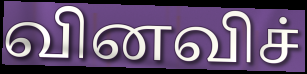
வினவிச்